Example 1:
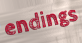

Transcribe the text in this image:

endings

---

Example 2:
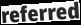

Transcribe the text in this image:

referred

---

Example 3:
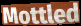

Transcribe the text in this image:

Mottled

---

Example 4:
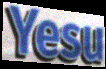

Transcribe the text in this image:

Yesu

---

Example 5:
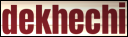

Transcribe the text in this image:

dekhechi